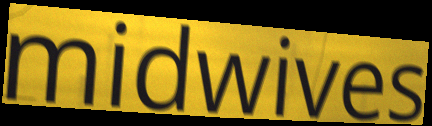
midwives